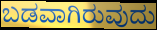
ಬಡವಾಗಿರುವುದು